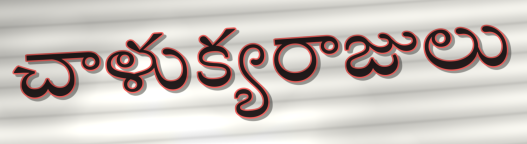
చాళుక్యరాజులు